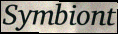
Symbiont